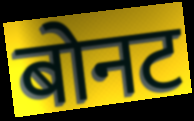
बोनट